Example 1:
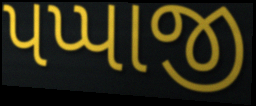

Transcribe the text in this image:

પપ્પાજી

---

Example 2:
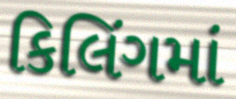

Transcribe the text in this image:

કિલિંગમાં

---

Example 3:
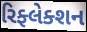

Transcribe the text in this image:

રિફ્લેક્શન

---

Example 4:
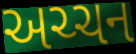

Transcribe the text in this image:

અચ્ચન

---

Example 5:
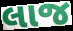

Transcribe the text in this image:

લાજ